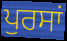
ਪੁਰਸਾਂ